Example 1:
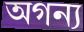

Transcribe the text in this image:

অগন্য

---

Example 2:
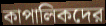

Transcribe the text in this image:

কাপালিকদের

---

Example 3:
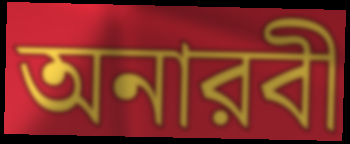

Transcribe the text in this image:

অনারবী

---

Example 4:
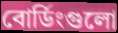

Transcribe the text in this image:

বোর্ডিংগুলো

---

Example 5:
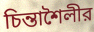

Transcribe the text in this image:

চিন্তাশৈলীর